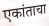
एकांताचा